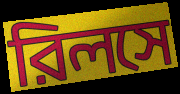
রিলসে